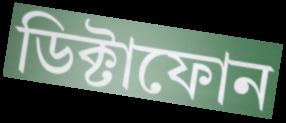
ডিক্টাফোন